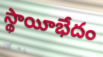
స్థాయీభేదం